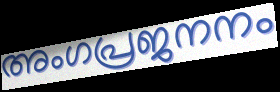
അംഗപ്രജനനം